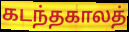
கடந்தகாலத்